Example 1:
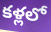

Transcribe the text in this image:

కళ్లలో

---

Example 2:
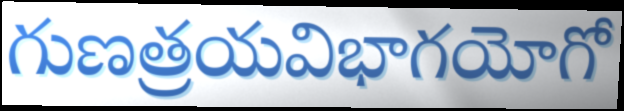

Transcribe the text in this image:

గుణత్రయవిభాగయోగో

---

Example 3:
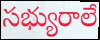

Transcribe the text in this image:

సభ్యురాలే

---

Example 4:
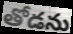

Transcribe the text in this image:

తోడను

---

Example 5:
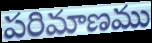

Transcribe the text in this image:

పరిమాణము